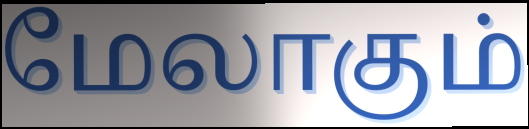
மேலாகும்